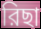
রিছা